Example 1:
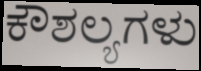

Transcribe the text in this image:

ಕೌಶಲ್ಯಗಳು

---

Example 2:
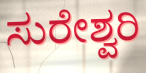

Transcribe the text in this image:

ಸುರೇಶ್ವರಿ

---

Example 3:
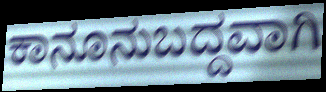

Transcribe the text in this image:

ಕಾನೂನುಬದ್ದವಾಗಿ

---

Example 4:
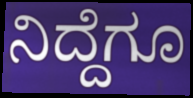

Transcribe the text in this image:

ನಿದ್ದೆಗೂ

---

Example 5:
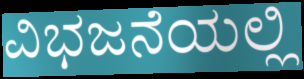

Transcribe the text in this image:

ವಿಭಜನೆಯಲ್ಲಿ